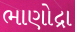
ભાણોદ્રા